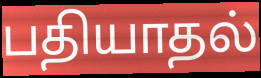
பதியாதல்